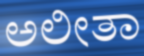
ಅಲೀತಾ